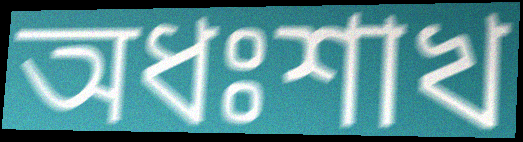
অধঃশাখ